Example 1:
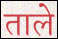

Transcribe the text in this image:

ताले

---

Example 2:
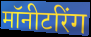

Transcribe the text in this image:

मॉनीटरिंग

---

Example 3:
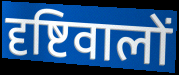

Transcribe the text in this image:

दृष्टिवालों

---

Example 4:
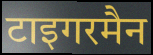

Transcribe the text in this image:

टाइगरमैन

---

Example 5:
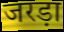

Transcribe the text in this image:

जरड़ा